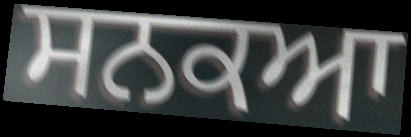
ਸਨਕਆ